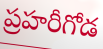
ప్రహరీగోడ